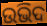
ଉଭିଦ